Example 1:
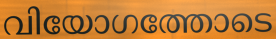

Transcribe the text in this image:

വിയോഗത്തോടെ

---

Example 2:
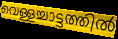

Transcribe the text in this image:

വെള്ളച്ചാട്ടത്തിൽ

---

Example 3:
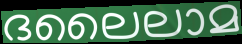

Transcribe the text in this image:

ദലൈലാമ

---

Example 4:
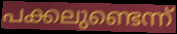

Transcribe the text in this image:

പക്കലുണ്ടെന്ന്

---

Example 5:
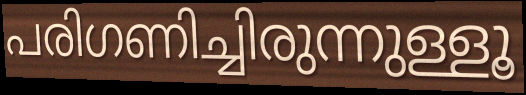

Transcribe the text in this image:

പരിഗണിച്ചിരുന്നുള്ളൂ